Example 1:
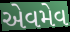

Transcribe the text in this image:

એવમેવ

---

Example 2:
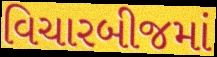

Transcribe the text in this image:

વિચારબીજમાં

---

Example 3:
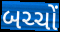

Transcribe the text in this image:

બચ્ચોં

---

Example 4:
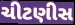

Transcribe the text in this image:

ચીટણીસ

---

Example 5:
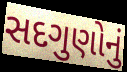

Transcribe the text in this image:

સદગુણોનું